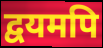
द्वयमपि